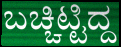
ಬಚ್ಚಿಟ್ಟಿದ್ದ